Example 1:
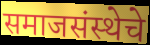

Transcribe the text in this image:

समाजसंस्थेचे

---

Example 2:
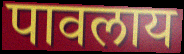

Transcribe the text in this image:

पावलाय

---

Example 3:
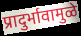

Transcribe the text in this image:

प्रादुर्भावामुळे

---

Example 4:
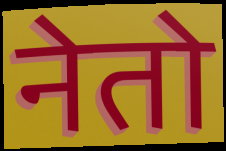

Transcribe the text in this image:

नेतो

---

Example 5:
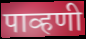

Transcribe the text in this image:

पाव्हणी